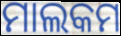
ମାଲକମ